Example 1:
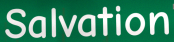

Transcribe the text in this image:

Salvation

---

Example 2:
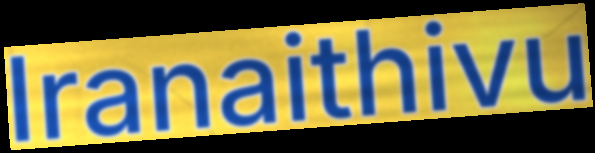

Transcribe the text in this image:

Iranaithivu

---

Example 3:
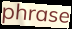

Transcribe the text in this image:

phrase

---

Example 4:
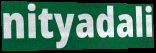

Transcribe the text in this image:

nityadali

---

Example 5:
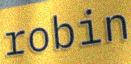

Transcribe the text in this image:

robin